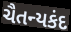
ચૈતન્યકંદ